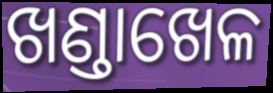
ଖଣ୍ଡାଖେଳ